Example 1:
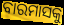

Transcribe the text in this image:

ବାରମାସକୁ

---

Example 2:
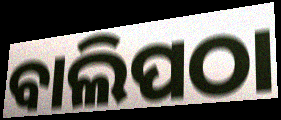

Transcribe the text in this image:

ବାଲିପଠା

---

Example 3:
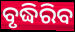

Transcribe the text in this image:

ବୃଦ୍ଧିରିବ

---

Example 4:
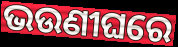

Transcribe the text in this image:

ଭଉଣୀଘରେ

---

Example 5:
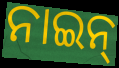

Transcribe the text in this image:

ନାଇନ୍